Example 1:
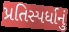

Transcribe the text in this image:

પ્રતિસ્પર્ધાનું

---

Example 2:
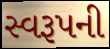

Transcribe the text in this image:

સ્વરૂપની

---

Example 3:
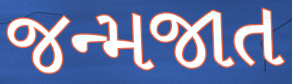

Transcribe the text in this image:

જન્મજાત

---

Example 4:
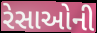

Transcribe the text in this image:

રેસાઓની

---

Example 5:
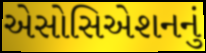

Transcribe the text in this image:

એસોસિએશનનું